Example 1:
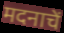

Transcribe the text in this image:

मदनाचें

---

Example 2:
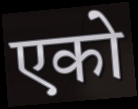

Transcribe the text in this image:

एको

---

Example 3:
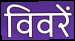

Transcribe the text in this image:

विवरें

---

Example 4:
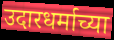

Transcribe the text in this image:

उदारधर्माच्या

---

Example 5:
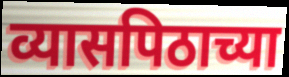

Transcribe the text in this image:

व्यासपिठाच्या